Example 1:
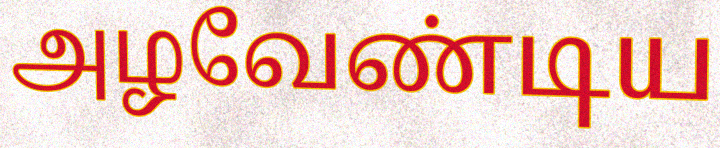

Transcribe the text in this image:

அழவேண்டிய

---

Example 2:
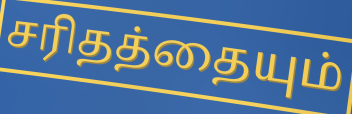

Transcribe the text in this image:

சரிதத்தையும்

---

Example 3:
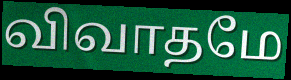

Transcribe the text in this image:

விவாதமே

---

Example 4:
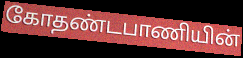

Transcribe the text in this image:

கோதண்டபாணியின்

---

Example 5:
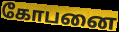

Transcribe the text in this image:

கோபனை